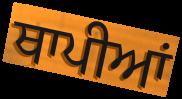
ਥਾਪੀਆਂ